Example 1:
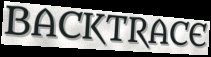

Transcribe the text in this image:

BACKTRACE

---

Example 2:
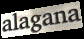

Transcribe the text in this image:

alagana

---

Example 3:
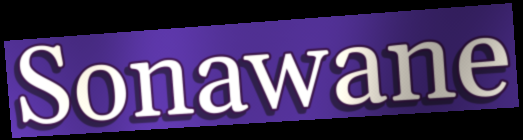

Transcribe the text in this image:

Sonawane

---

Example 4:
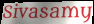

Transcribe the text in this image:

Sivasamy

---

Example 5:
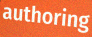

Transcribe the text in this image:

authoring